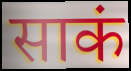
साकं